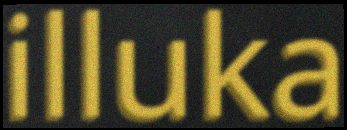
illuka